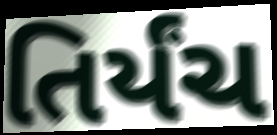
તિર્યંચ